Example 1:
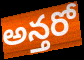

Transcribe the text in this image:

అన్తరో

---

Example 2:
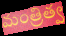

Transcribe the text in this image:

మంత్రిత్వ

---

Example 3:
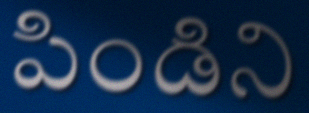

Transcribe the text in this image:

పిండిని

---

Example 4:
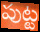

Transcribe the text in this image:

పుట్ట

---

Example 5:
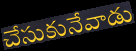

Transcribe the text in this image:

చేసుకునేవాడు